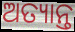
ଅତ୍ୟାନ୍ତ